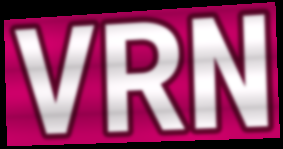
VRN